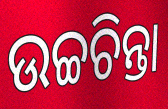
ଉଚ୍ଚଚିନ୍ତା